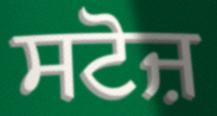
ਸਟੋਜ਼